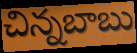
చిన్నబాబు